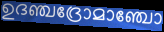
ഉദഞ്ചദ്രോമാഞ്ചോ